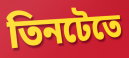
তিনটেতে